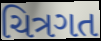
ચિત્રગત